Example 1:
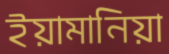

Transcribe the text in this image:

ইয়ামানিয়া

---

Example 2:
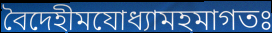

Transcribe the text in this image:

বৈদেহীমযোধ্যামহমাগতঃ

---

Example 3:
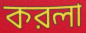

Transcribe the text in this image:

করলা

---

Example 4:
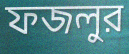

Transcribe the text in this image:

ফজলুর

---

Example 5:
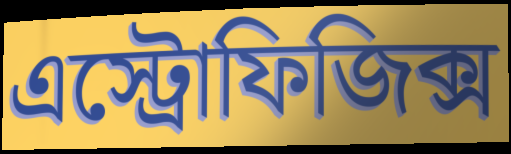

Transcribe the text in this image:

এস্ট্রোফিজিক্স